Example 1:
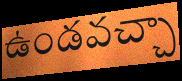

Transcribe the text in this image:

ఉండవచ్చా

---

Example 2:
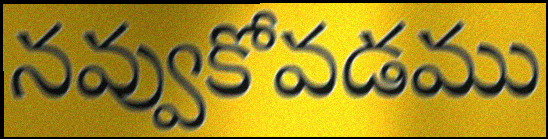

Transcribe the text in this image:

నవ్వుకోవడము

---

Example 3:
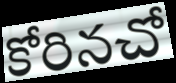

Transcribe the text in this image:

కోరినచో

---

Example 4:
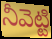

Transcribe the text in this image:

నీవెట్టి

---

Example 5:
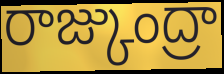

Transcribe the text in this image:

రాజ్కుంద్రా